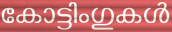
കോട്ടിംഗുകൾ